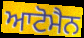
ਆਟੋਮੈਨ